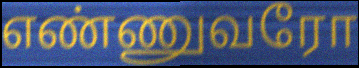
எண்ணுவரோ